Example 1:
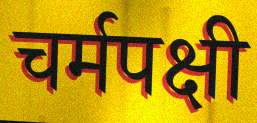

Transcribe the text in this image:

चर्मपक्षी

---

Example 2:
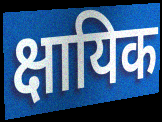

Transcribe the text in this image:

क्षायिक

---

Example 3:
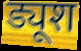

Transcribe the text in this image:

ड्यूश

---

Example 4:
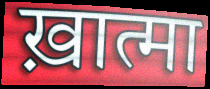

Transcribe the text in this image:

ख़ात्मा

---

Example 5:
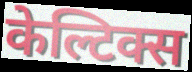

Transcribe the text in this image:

केल्टिक्स